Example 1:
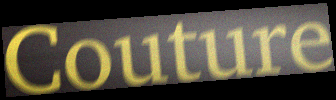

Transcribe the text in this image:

Couture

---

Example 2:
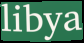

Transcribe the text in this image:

libya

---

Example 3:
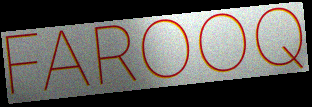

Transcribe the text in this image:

FAROOQ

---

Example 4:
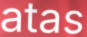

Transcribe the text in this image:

atas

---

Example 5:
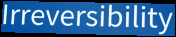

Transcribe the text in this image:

Irreversibility